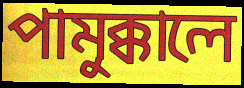
পামুক্কালে